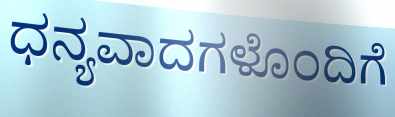
ಧನ್ಯವಾದಗಳೊಂದಿಗೆ